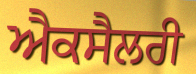
ਐਕਸੈਲਰੀ